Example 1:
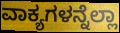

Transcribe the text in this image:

ವಾಕ್ಯಗಳನ್ನೆಲ್ಲಾ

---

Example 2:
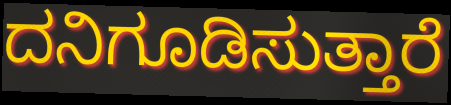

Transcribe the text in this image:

ದನಿಗೂಡಿಸುತ್ತಾರೆ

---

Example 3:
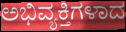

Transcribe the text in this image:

ಅಭಿವ್ಯಕ್ತಿಗಳಾದ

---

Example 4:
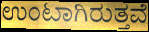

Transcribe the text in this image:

ಉಂಟಾಗಿರುತ್ತವೆ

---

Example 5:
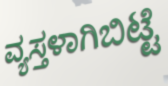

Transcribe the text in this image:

ವ್ಯಸ್ತಳಾಗಿಬಿಟ್ಟೆ